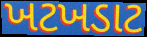
ખટખડાટ